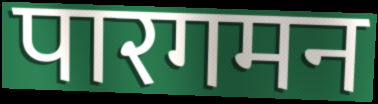
पारगमन